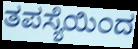
ತಪಸ್ಯೆಯಿಂದ